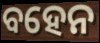
ବହେନ